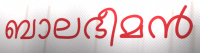
ബാലഭീമൻ